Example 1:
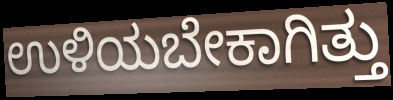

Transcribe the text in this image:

ಉಳಿಯಬೇಕಾಗಿತ್ತು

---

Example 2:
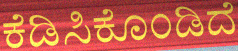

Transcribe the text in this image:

ಕೆಡಿಸಿಕೊಂಡಿದೆ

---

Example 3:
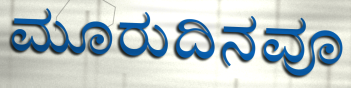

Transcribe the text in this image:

ಮೂರುದಿನವೂ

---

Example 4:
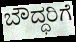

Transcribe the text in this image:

ಬೌದ್ಧರಿಗೆ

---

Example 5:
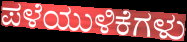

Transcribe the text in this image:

ಪಳೆಯುಳಿಕೆಗಳು